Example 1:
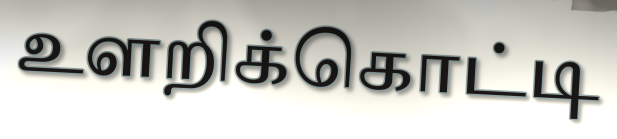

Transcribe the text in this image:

உளறிக்கொட்டி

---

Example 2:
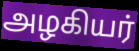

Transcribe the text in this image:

அழகியர்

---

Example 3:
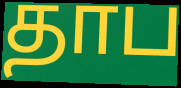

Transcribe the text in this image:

தாப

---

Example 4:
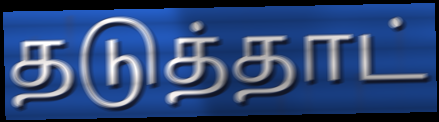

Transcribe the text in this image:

தடுத்தாட்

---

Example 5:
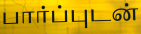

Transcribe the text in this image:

பார்ப்புடன்